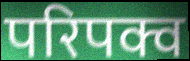
परिपक्व